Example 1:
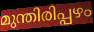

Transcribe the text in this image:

മുന്തിരിപ്പഴം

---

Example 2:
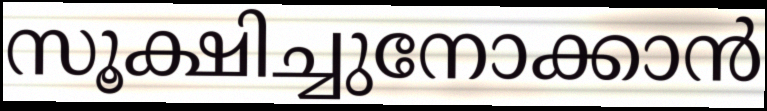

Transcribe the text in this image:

സൂക്ഷിച്ചുനോക്കാൻ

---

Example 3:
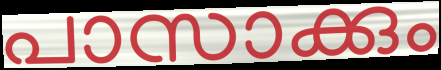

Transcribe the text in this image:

പാസാക്കും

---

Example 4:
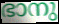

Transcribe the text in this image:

ഭാനു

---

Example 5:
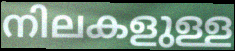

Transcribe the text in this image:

നിലകളുള്ള